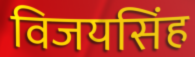
विजयसिंह